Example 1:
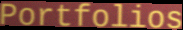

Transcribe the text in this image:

Portfolios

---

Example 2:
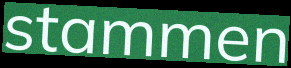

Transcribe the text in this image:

stammen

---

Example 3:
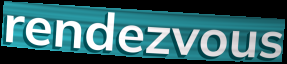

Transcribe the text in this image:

rendezvous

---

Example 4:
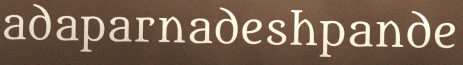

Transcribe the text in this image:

adaparnadeshpande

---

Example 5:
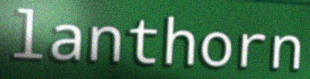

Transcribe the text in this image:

lanthorn